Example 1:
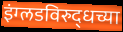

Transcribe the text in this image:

इंग्लडविरुद्धच्या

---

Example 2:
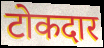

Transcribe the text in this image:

टोकदार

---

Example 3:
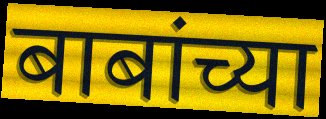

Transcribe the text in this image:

बाबांच्या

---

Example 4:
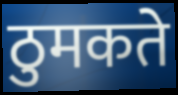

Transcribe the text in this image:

ठुमकते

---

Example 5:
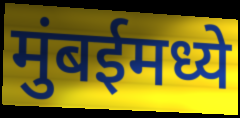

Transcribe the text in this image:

मुंबईमध्ये